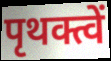
पृथक्त्वें